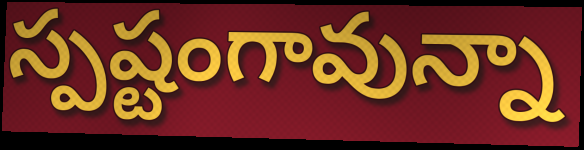
స్పష్టంగావున్నా